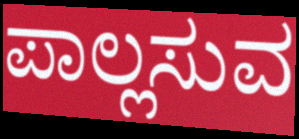
ಪಾಲ್ಲಸುವ